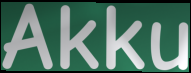
Akku